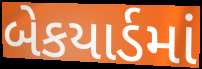
બેકયાર્ડમાં